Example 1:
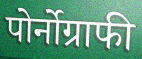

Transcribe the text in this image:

पोर्नोग्राफी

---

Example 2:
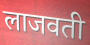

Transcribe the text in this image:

लाजवती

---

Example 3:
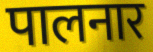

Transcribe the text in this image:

पालनार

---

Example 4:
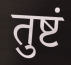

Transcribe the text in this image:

तुष्टं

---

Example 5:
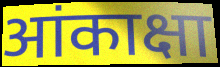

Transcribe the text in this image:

आंकाक्षा